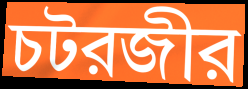
চটরজীর